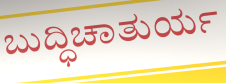
ಬುದ್ಧಿಚಾತುರ್ಯ